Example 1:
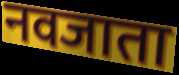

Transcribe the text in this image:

नवजाता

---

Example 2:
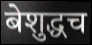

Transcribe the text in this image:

बेशुद्धच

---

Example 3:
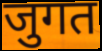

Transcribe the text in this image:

जुगत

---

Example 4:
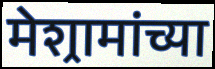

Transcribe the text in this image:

मेश्रामांच्या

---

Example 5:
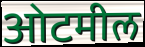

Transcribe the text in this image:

ओटमील